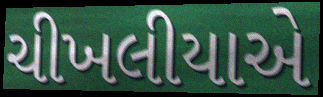
ચીખલીયાએ